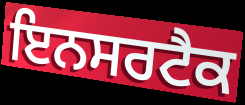
ਇਨਸਰਟੈਕ